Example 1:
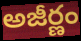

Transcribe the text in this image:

అజీర్ణం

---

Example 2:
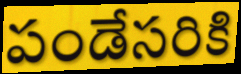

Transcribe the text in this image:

పండేసరికి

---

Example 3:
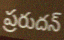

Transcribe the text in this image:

ప్రరుదన్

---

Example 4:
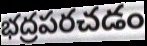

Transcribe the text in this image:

భద్రపరచడం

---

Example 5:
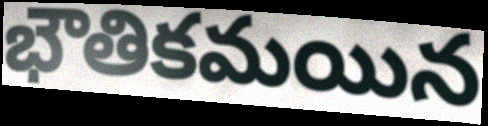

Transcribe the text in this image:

భౌతికమయిన